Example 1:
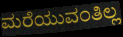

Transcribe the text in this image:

ಮರೆಯುವಂತಿಲ್ಲ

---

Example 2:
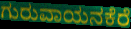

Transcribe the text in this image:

ಗುರುವಾಯನಕೆರೆ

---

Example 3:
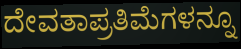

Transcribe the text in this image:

ದೇವತಾಪ್ರತಿಮೆಗಳನ್ನೂ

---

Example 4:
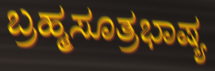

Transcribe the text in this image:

ಬ್ರಹ್ಮಸೂತ್ರಭಾಷ್ಯ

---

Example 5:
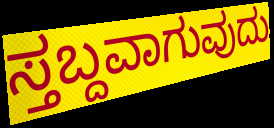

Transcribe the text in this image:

ಸ್ತಬ್ದವಾಗುವುದು